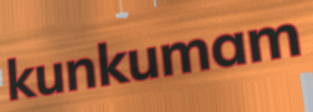
kunkumam